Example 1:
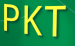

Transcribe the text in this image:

PKT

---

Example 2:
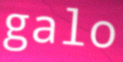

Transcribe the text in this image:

galo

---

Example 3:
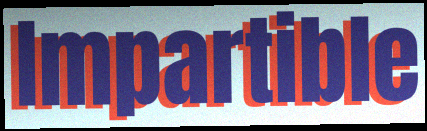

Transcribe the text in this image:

Impartible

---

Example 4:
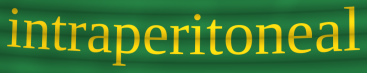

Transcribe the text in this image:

intraperitoneal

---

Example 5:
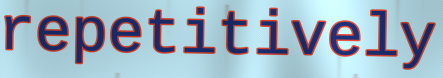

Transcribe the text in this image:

repetitively